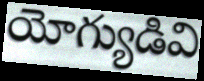
యోగ్యుడివి